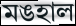
মঙহাল